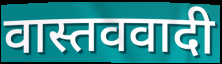
वास्तववादी